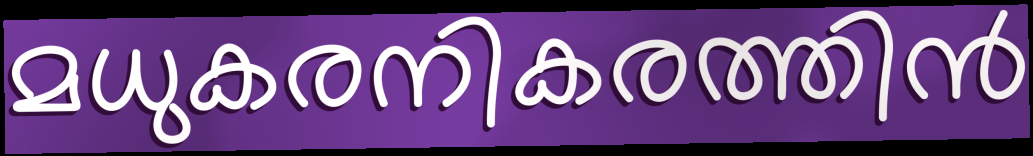
മധുകരനികരത്തിൻ